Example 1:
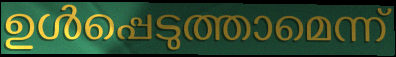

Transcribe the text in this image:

ഉൾപ്പെടുത്താമെന്ന്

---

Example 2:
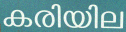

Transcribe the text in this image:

കരിയില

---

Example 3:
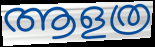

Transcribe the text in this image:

ആളത്ര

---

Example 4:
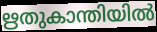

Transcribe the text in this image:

ഋതുകാന്തിയിൽ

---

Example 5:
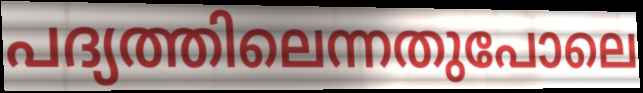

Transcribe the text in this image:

പദ്യത്തിലെന്നതുപോലെ